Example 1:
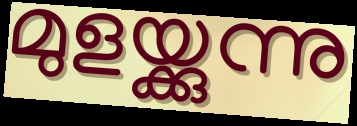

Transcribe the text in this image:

മുളയ്ക്കുന്നു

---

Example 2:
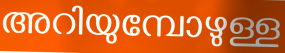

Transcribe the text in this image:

അറിയുമ്പോഴുള്ള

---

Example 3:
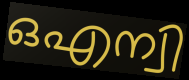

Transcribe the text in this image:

ഒഎന്വി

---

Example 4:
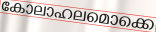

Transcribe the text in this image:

കോലാഹലമൊക്കെ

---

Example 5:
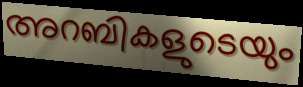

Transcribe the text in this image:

അറബികളുടെയും